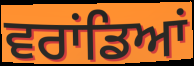
ਵਰਾਂਡਿਆਂ